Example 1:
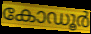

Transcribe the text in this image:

കോഡൂർ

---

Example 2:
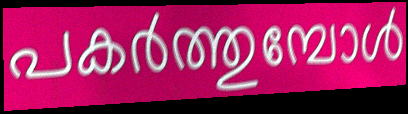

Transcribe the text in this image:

പകർത്തുമ്പോൾ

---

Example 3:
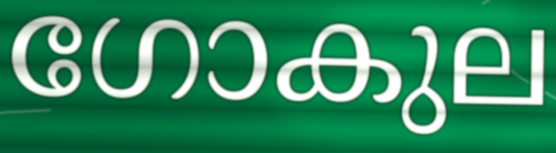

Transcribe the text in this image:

ഗോകുല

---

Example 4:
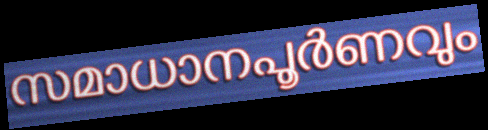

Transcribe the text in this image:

സമാധാനപൂർണവും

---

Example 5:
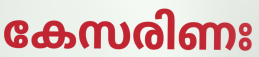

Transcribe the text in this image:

കേസരിണഃ